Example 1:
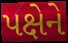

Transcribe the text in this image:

પક્ષેને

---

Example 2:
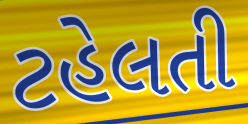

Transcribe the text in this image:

ટહેલતી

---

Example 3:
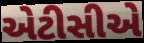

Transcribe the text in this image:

એટીસીએ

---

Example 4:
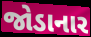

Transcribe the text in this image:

જોડાનાર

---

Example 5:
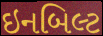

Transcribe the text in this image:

ઇનબિલ્ટ